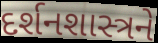
દર્શનશાસ્ત્રને